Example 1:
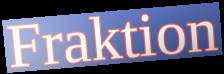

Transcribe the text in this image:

Fraktion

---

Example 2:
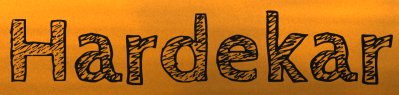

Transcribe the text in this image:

Hardekar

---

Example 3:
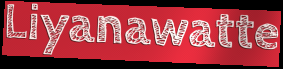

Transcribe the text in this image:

Liyanawatte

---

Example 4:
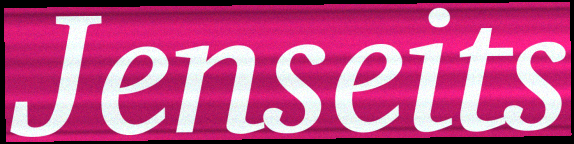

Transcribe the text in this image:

Jenseits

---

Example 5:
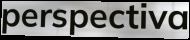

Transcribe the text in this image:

perspectiva